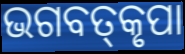
ଭଗବତ୍‌କୃପା